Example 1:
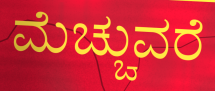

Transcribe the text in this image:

ಮೆಚ್ಚುವರೆ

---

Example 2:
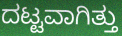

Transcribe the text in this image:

ದಟ್ಟವಾಗಿತ್ತು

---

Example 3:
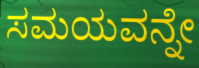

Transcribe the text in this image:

ಸಮಯವನ್ನೇ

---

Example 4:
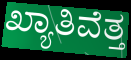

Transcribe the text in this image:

ಖ್ಯಾತಿವೆತ್ತ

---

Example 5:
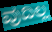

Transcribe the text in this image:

ವುದಿಲ್ಲ